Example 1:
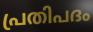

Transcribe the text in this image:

പ്രതിപദം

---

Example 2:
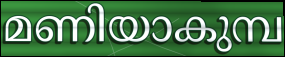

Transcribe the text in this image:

മണിയാകുമ്പ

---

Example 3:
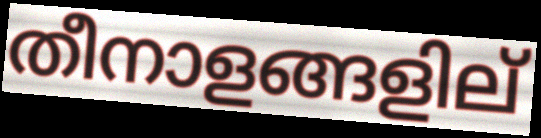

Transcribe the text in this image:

തീനാളങ്ങളില്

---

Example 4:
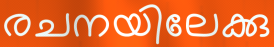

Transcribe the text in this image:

രചനയിലേക്കു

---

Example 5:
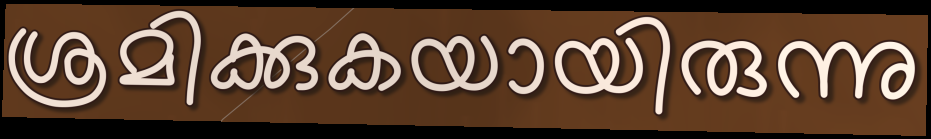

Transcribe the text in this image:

ശ്രമിക്കുകയായിരുന്നു